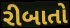
રીબાતો